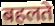
बहलते